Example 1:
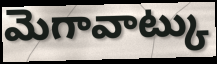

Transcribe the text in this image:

మెగావాట్కు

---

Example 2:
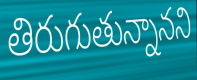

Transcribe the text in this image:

తిరుగుతున్నానని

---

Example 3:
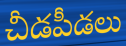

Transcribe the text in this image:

చీడపీడలు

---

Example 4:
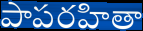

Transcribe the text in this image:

పాపరహితా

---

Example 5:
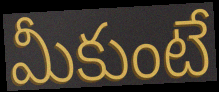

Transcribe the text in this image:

మీకుంటే